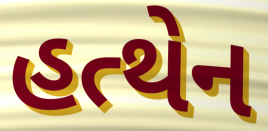
હત્થેન